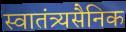
स्वातंत्र्यसैनिक